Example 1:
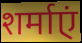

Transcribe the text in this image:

शर्माएं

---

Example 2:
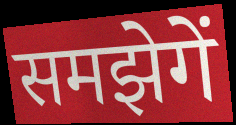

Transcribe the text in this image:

समझेगें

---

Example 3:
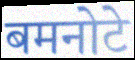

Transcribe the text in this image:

बमनोटे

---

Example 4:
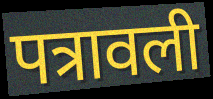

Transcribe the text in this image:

पत्रावली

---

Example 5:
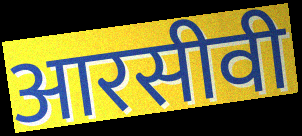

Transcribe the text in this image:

आरसीवी